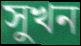
সুখন